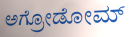
ಅಗ್ರೋಡೋಮ್